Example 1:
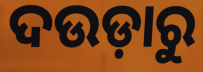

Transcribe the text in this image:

ଦଉଡ଼ାରୁ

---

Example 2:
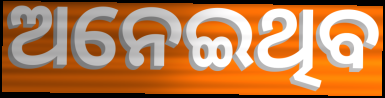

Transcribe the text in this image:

ଅନେଇଥିବ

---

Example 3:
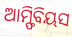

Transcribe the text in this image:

ଆମ୍ଫିବିୟସ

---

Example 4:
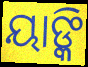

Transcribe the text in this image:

ୟାଙ୍କି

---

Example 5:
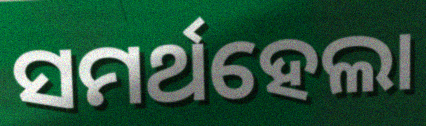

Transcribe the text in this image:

ସମର୍ଥହେଲା